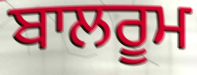
ਬਾਲਰੂਮ